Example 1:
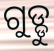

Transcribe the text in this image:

ଗୁଡ୍ଡୁ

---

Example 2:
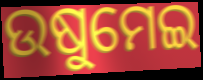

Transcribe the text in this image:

ଉଷୁମେଇ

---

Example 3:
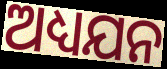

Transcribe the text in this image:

ଅଧ୍ୟଯନ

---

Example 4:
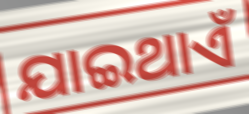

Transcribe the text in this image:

ଯାଇଥାଏଁ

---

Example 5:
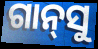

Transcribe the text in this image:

ଗାନ୍‍ସୁ